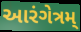
આરંગેત્રમ્